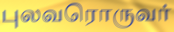
புலவரொருவர்